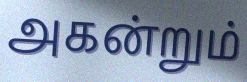
அகன்றும்